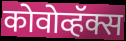
कोवोव्हॅक्स